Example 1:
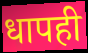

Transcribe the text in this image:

धापही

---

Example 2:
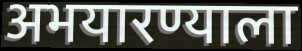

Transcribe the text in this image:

अभयारण्याला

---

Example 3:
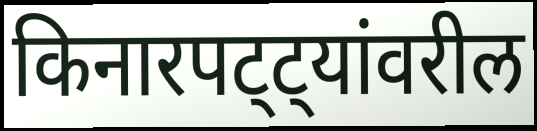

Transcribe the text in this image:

किनारपट्ट्यांवरील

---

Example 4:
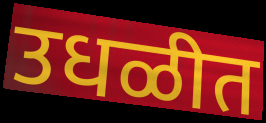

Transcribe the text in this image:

उधळीत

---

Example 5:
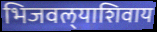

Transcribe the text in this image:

भिजवल्याशिवाय